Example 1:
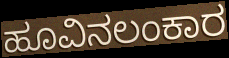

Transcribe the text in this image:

ಹೂವಿನಲಂಕಾರ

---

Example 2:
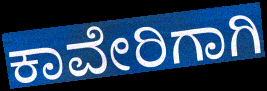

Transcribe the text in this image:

ಕಾವೇರಿಗಾಗಿ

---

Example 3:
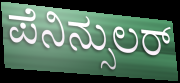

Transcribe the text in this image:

ಪೆನಿನ್ಸುಲರ್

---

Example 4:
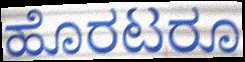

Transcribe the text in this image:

ಹೊರಟರೂ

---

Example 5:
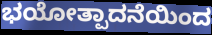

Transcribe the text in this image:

ಭಯೋತ್ಪಾದನೆಯಿಂದ